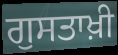
ਗੁਸਤਾਖ਼ੀ